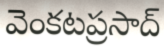
వెంకటప్రసాద్